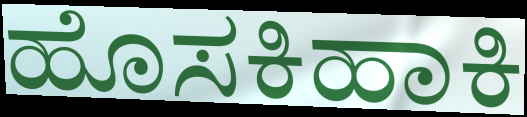
ಹೊಸಕಿಹಾಕಿ